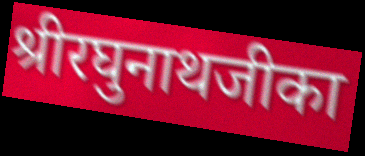
श्रीरघुनाथजीका